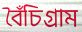
বৈঁচিগ্রাম